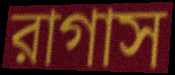
রাগাস